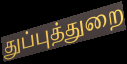
துப்புத்துறை